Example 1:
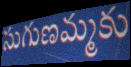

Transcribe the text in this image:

సుగుణమ్మకు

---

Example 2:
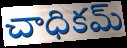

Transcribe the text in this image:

చాధికమ్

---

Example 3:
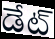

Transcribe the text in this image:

డేట్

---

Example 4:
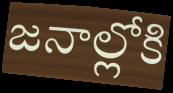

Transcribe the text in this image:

జనాల్లోకి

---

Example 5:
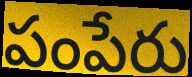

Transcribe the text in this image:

పంపేరు